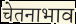
चेतनाभाव